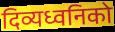
दिव्यध्वनिको